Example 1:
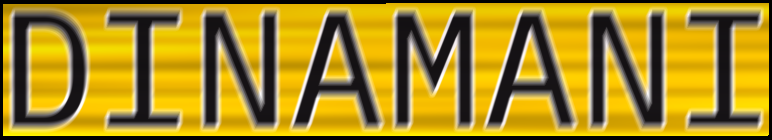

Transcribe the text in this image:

DINAMANI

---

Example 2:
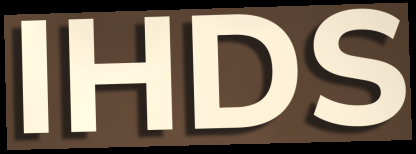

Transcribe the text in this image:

IHDS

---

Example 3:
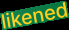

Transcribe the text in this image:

likened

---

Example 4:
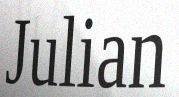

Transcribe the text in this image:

Julian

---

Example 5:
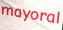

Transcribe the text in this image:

mayoral